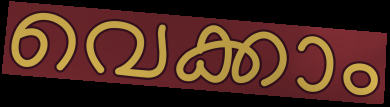
വെക്കാം